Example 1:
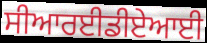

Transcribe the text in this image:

ਸੀਆਰਈਡੀਏਆਈ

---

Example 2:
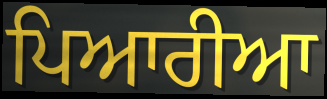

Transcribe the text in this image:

ਪਿਆਰੀਆ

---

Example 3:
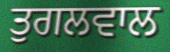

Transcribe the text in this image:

ਤੁਗਲਵਾਲ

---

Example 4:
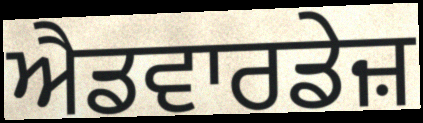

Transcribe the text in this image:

ਐਡਵਾਰਡੇਜ਼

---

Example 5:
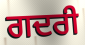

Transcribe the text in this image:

ਗਦਰੀ